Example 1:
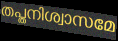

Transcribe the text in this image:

തപ്തനിശ്വാസമേ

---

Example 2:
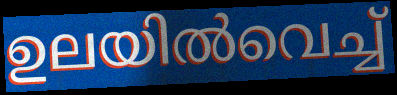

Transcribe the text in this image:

ഉലയിൽവെച്ച്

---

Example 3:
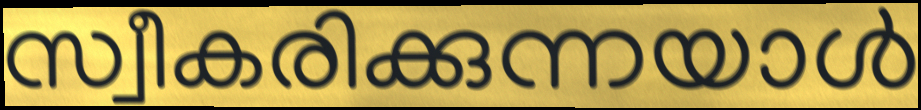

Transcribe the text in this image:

സ്വീകരിക്കുന്നയാൾ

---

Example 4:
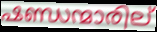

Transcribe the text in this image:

ഷണ്ഡന്മാരില്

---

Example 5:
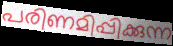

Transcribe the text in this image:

പരിണമിപ്പിക്കുന്ന